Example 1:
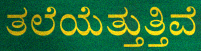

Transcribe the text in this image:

ತಲೆಯೆತ್ತುತ್ತಿವೆ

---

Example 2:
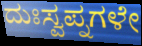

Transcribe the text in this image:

ದುಃಸ್ವಪ್ನಗಳೇ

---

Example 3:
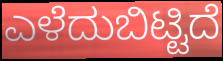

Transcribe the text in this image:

ಎಳೆದುಬಿಟ್ಟಿದೆ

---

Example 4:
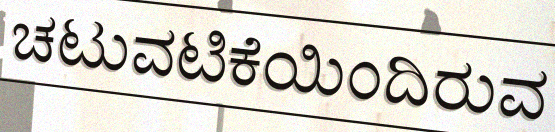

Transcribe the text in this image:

ಚಟುವಟಿಕೆಯಿಂದಿರುವ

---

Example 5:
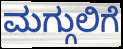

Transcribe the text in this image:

ಮಗ್ಗುಲಿಗೆ